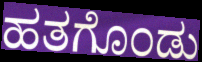
ಹತಗೊಂಡು